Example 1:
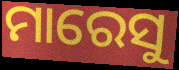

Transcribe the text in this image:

ମାରେସୁ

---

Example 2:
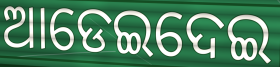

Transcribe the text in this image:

ଆଡେଇଦେଇ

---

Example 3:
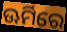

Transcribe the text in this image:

ଊର୍ମିରେ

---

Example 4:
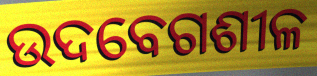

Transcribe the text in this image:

ଉଦବେଗଶୀଳ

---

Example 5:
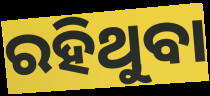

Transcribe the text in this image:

ରହିଥୁବା